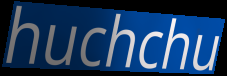
huchchu